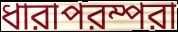
ধারাপরম্পরা